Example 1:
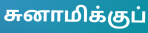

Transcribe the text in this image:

சுனாமிக்குப்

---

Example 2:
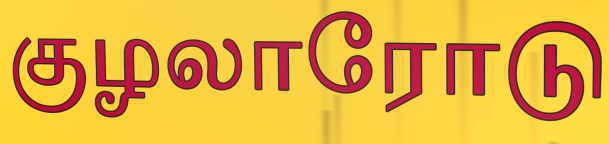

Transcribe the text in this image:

குழலாரோடு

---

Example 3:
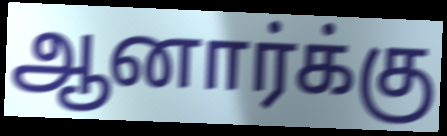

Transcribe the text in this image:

ஆனார்க்கு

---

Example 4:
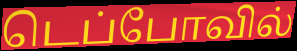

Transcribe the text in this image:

டெப்போவில்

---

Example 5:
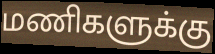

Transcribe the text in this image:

மணிகளுக்கு